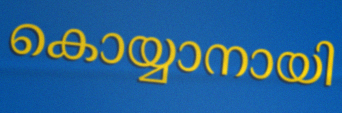
കൊയ്യാനായി